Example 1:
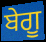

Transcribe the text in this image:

ਬੇਗੂ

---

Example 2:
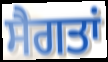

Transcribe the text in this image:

ਸੈਗਤਾਂ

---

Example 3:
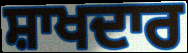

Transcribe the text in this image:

ਸ਼ਾਖਦਾਰ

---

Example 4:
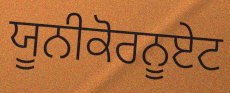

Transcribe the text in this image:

ਯੂਨੀਕੋਰਨੂਏਟ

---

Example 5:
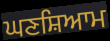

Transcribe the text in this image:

ਘਣਸ਼ਿਆਮ